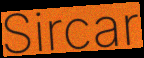
Sircar